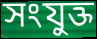
সংযুক্ত